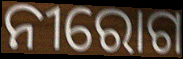
ନୀରୋଗ